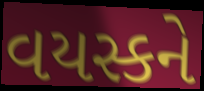
વયસ્કને